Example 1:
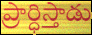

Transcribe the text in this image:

ప్రార్ధిస్తాడు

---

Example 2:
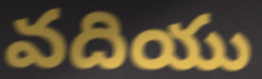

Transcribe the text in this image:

వదియు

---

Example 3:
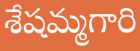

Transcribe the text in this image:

శేషమ్మగారి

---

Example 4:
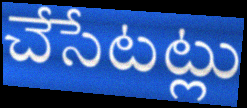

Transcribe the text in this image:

చేసేటట్లు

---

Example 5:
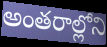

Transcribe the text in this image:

అంతరాల్లోని